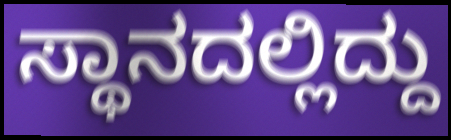
ಸ್ಥಾನದಲ್ಲಿದ್ದು